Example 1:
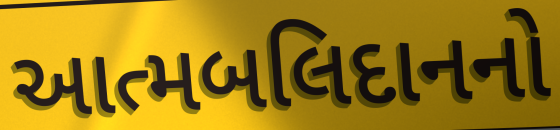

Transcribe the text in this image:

આત્મબલિદાનનો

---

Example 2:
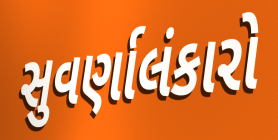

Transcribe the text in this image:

સુવર્ણાલંકારો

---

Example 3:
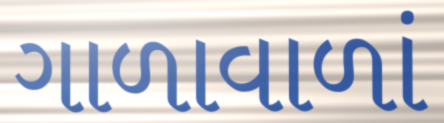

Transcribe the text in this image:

ગાળાવાળાં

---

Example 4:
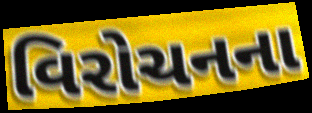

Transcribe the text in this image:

વિરોચનના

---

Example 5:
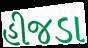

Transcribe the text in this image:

હીજડા